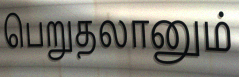
பெறுதலானும்